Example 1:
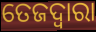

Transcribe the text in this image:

ତେଜଦ୍ୱାରା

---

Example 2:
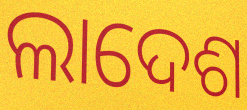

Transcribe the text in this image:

ଲାଦେଶ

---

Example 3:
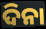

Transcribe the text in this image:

ଦିନା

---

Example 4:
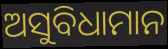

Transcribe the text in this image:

ଅସୁବିଧାମାନ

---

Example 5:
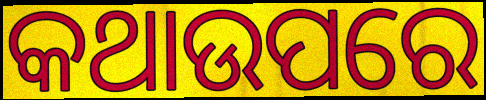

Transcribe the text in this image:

କଥାଉପରେ